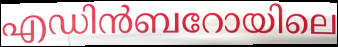
എഡിൻബറോയിലെ